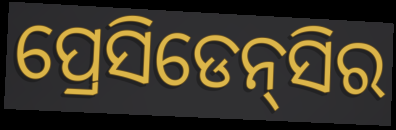
ପ୍ରେସିଡେନ୍‌ସିର